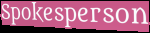
Spokesperson